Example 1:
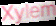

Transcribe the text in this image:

Xylem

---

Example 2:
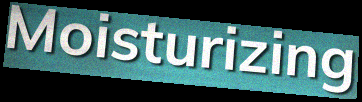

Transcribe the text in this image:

Moisturizing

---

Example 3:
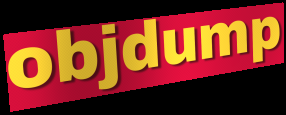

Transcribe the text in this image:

objdump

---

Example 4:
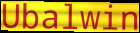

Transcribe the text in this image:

Ubalwin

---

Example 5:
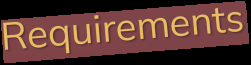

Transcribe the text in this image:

Requirements